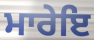
ਮਾਰੇਇ